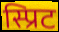
स्प्रिट